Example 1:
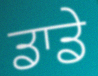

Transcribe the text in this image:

ਡਾਡੇ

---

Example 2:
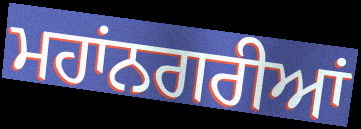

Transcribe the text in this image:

ਮਹਾਂਨਗਰੀਆਂ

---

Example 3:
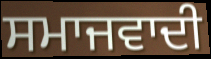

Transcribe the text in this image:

ਸਮਾਜਵਾਦੀ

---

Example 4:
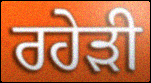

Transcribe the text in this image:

ਰਹੇੜੀ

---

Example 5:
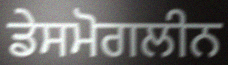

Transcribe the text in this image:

ਡੇਸਮੋਗਲੀਨ